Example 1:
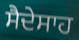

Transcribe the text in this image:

ਸੈਦੇਸਾਹ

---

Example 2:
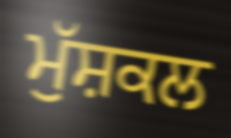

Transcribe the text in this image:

ਮੁੱਸ਼ਕਲ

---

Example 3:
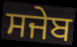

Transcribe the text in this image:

ਸਜੇਬ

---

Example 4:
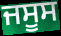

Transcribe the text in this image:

ਜਸੂਸ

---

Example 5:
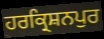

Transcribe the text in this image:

ਹਰਕ੍ਰਿਸ਼ਨਪੁਰ